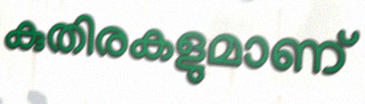
കുതിരകളുമാണ്